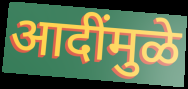
आदींमुळे